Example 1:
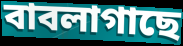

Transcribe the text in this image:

বাবলাগাছে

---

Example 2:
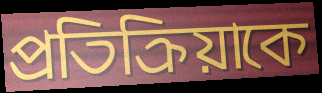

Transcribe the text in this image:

প্রতিক্রিয়াকে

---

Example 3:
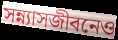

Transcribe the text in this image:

সন্ন্যাসজীবনেও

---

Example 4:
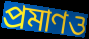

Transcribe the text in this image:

প্রমাণও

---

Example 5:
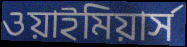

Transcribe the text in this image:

ওয়াইমিয়ার্স